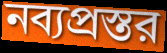
নব্যপ্রস্তর